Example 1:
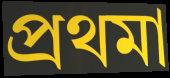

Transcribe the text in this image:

প্রথমা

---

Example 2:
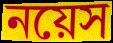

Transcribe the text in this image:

নয়েস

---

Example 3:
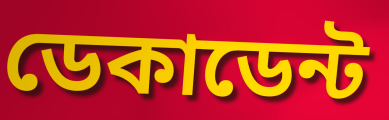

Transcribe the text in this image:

ডেকাডেন্ট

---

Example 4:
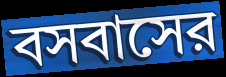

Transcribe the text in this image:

বসবাসের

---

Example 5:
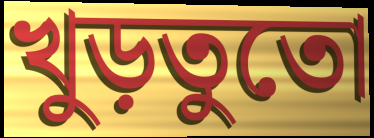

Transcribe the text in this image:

খুড়তুতো